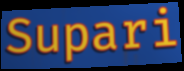
Supari